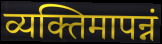
व्यक्तिमापन्नं